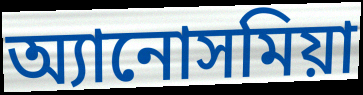
অ্যানোসমিয়া